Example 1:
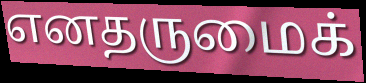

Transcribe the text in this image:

எனதருமைக்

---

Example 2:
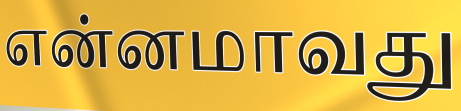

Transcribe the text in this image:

என்னமாவது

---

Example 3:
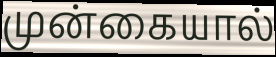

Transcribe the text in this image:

முன்கையால்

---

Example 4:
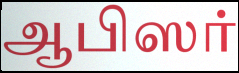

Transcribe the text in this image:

ஆபிஸர்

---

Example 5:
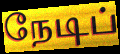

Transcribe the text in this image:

நேடிப்